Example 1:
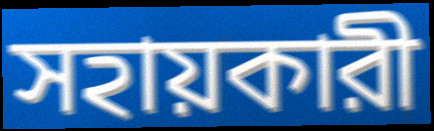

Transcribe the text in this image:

সহায়কারী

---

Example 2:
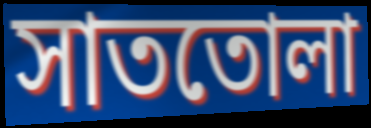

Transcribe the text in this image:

সাততোলা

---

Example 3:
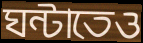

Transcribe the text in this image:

ঘন্টাতেও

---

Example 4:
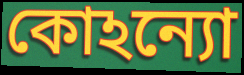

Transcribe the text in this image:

কোঽন্যো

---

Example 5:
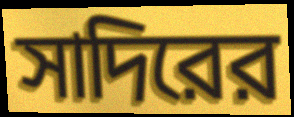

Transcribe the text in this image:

সাদিরের